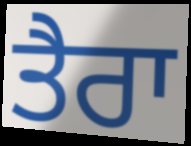
ਤੈਰਾ